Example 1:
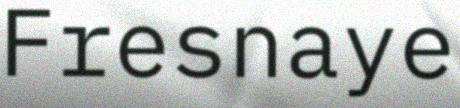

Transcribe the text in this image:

Fresnaye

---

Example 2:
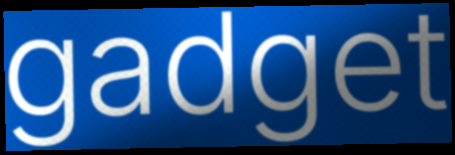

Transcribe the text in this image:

gadget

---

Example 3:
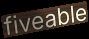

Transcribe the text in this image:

fiveable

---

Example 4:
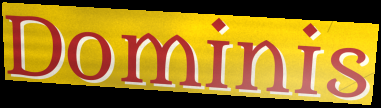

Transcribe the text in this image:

Dominis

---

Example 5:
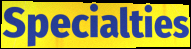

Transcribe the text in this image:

Specialties